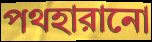
পথহারানো